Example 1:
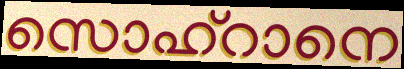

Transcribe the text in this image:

സൊഹ്റാനെ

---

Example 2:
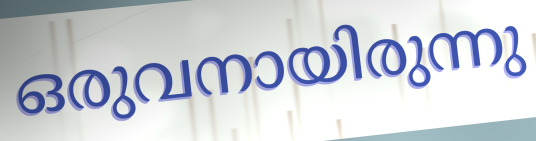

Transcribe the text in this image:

ഒരുവനായിരുന്നു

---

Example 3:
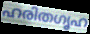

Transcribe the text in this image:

ഹരിതഗൃഹ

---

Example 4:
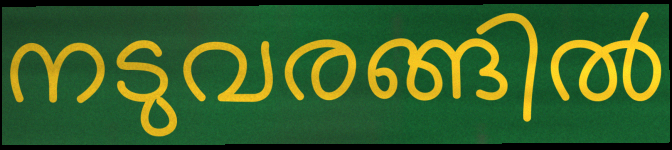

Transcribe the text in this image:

നടുവരങ്ങിൽ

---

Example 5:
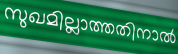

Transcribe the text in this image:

സുഖമില്ലാത്തതിനാൽ